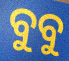
ବୁବୁ